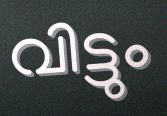
വിട്ടും